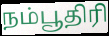
நம்பூதிரி